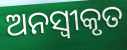
ଅନସ୍ବୀକୃତ